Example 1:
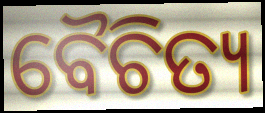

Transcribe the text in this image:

ବୈଚିତ୍ୟ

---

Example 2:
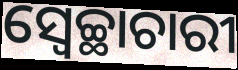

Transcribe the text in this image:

ସ୍ୱେଚ୍ଛାଚାରୀ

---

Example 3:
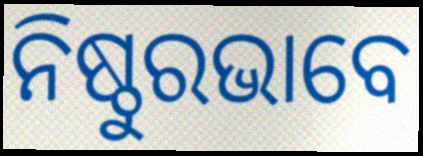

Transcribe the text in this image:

ନିଷ୍ଠୁରଭାବେ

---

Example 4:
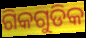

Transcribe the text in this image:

ଗିକଗୁଡିକ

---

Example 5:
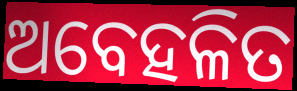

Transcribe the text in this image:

ଅବେହଳିତ